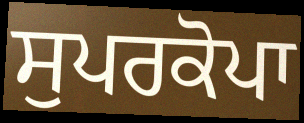
ਸੁਪਰਕੋਪਾ